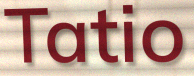
Tatio